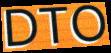
DTO